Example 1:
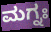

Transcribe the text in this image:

ಮಗ್ನಃ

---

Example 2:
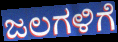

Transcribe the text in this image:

ಜಲಗಳಿಗೆ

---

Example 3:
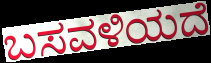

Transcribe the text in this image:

ಬಸವಳಿಯದೆ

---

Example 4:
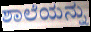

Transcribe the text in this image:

ಶಾಲೆಯನ್ನು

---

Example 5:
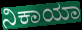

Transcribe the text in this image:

ನಿಕಾಯಾ